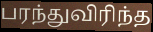
பரந்துவிரிந்த